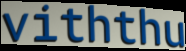
viththu